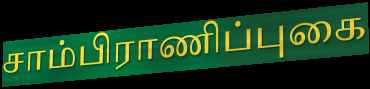
சாம்பிராணிப்புகை